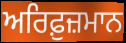
ਅਰਿਫ਼ੁਜ਼ਮਾਨ